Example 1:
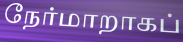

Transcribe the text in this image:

நேர்மாறாகப்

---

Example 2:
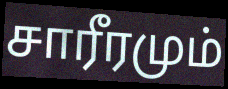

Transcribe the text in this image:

சாரீரமும்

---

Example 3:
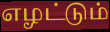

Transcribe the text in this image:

எழட்டும்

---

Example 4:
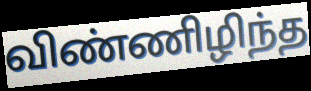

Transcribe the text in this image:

விண்ணிழிந்த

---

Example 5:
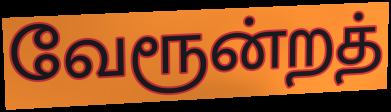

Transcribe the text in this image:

வேரூன்றத்